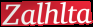
Zalhlta